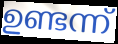
ഉണ്ടന്ന്